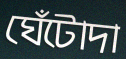
ঘেঁটোদা